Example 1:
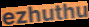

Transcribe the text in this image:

ezhuthu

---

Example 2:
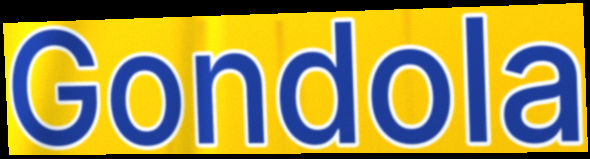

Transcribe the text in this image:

Gondola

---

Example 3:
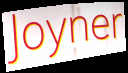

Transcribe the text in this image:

Joyner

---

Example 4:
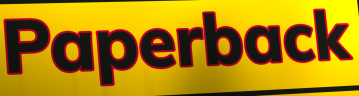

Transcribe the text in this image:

Paperback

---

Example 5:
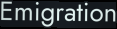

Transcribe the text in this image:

Emigration